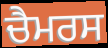
ਚੈਮਰਸ